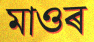
মাওৰ